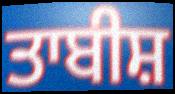
ਤਾਬੀਸ਼